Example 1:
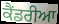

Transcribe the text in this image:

ਕੈਂਡਰੀਆ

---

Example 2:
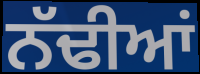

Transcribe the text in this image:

ਨੱਢੀਆਂ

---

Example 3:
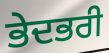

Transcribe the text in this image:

ਭੇਦਭਰੀ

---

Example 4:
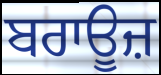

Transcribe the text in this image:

ਬਰਾਊਜ਼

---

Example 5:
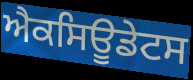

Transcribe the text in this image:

ਐਕਸਿਊਡੇਟਸ